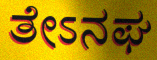
ತೇಽನಘ